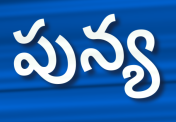
పున్య